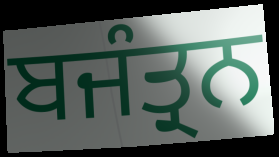
ਬਜੰਤ੍ਰਨ